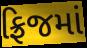
ફ્રિજમાં